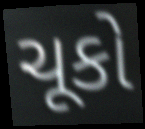
ચૂકો